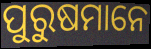
ପୁରୁଷମାନେ